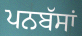
ਪਨਬੱਸਾਂ